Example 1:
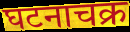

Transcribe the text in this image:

घटनाचक्र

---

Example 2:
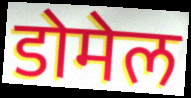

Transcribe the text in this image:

डोमेल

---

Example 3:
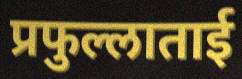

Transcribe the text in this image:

प्रफुल्लाताई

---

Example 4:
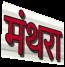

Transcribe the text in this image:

मंथरा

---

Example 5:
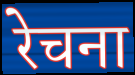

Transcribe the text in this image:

रेचना